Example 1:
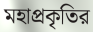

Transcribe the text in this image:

মহাপ্রকৃতির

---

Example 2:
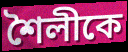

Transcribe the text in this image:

শৈলীকে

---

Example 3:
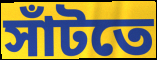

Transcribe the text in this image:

সাঁটতে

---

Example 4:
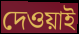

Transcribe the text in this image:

দেওয়াই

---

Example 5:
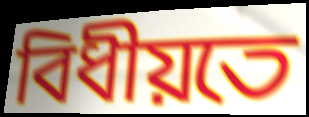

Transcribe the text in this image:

বিধীয়তে